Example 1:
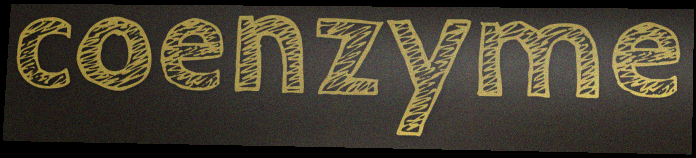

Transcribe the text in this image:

coenzyme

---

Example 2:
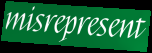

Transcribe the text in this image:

misrepresent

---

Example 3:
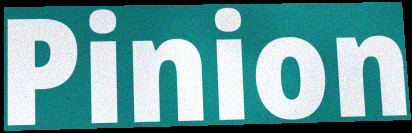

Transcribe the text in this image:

Pinion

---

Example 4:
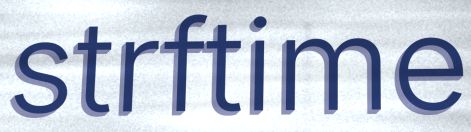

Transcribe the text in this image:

strftime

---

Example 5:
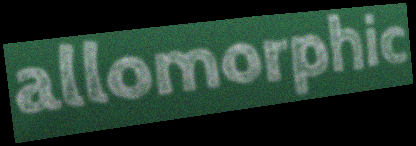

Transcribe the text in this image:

allomorphic